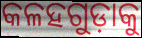
କଳହଗୁଡ଼ାକୁ